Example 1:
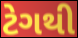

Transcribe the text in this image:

ટેગથી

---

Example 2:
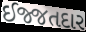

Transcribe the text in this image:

ઈજ્જતદાર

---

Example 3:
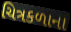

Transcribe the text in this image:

ચિત્રકળાના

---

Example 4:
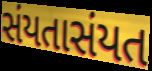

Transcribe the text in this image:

સંયતાસંયત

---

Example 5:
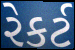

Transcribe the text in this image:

રેકર્ટ